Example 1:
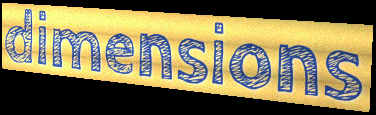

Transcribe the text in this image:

dimensions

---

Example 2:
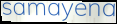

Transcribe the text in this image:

samayena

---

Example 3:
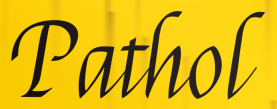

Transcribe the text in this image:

Pathol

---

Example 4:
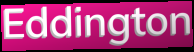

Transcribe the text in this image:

Eddington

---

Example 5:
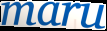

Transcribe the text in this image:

maru